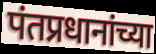
पंतप्रधानांच्या